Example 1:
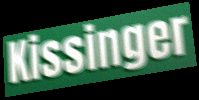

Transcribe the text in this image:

Kissinger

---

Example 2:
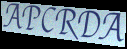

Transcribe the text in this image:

APCRDA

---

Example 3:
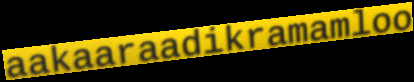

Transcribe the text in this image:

aakaaraadikramamloo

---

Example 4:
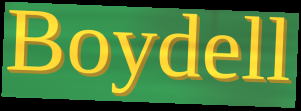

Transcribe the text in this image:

Boydell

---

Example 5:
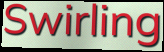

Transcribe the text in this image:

Swirling